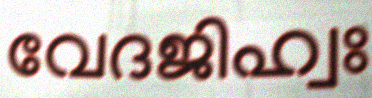
വേദജിഹ്വഃ